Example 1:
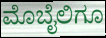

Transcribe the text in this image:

ಮೊಬೈಲಿಗೂ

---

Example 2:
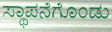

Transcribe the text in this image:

ಸ್ಥಾಪನೆಗೊಂಡು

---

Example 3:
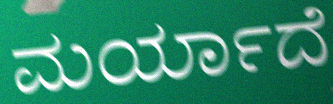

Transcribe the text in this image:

ಮರ್ಯಾದೆ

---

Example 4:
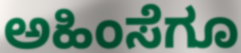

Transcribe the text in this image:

ಅಹಿಂಸೆಗೂ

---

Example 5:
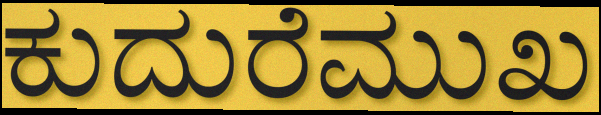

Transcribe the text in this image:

ಕುದುರೆಮುಖ